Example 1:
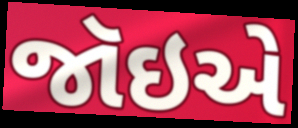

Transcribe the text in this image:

જૉઇએ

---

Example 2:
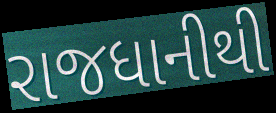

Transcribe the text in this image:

રાજધાનીથી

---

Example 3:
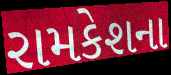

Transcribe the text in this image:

રામકેશના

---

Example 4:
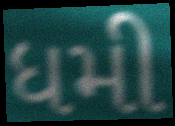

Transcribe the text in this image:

ધમી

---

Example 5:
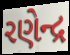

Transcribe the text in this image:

રણેન્દ્ર